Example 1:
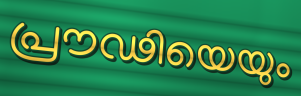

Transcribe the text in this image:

പ്രൗഢിയെയും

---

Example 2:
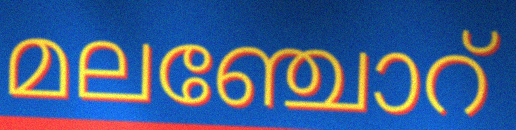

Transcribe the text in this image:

മലഞ്ചോറ്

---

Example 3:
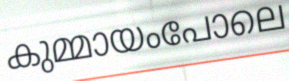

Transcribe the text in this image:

കുമ്മായംപോലെ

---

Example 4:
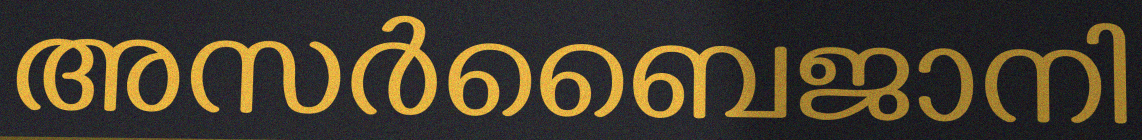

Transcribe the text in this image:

അസർബൈജാനി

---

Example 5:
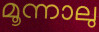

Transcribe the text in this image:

മൂന്നാലു